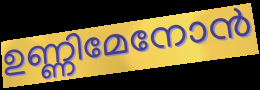
ഉണ്ണിമേനോൻ